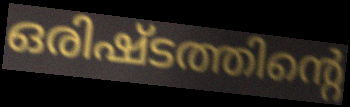
ഒരിഷ്ടത്തിന്റെ